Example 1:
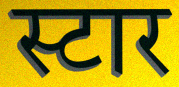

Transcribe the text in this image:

स्टार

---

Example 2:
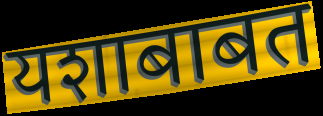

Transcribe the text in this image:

यशाबाबत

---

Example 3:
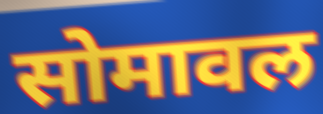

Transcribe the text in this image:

सोमावल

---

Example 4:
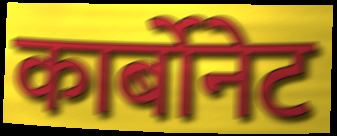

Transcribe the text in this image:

कार्बोनेट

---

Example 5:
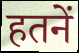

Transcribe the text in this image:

हतनें